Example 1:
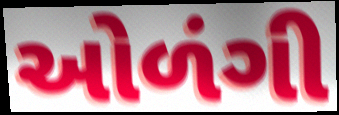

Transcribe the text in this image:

ઓળંગી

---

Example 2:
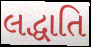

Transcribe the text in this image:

લદ્ધાતિ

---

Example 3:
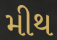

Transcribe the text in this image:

મીથ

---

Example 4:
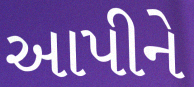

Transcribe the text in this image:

આપીને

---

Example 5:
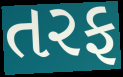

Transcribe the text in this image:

તરફ